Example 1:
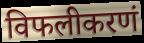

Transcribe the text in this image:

विफलीकरणं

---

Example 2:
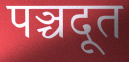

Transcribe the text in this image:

पञ्चदूत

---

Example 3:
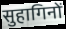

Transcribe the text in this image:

सुहागिनों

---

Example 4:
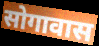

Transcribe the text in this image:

सोगावास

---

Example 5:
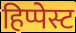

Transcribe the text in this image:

हिप्पेस्ट